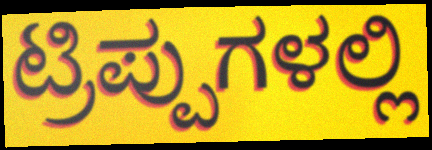
ಟ್ರಿಪ್ಪುಗಳಲ್ಲಿ